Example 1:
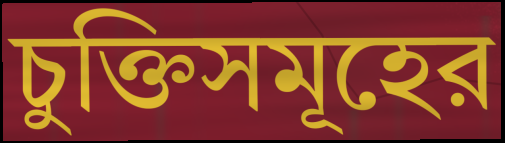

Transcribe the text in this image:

চুক্তিসমূহের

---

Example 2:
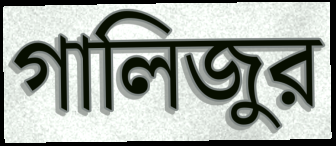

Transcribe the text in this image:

গালিজুর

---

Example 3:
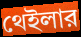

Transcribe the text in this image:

থেইলার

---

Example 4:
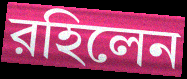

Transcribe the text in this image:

রহিলেন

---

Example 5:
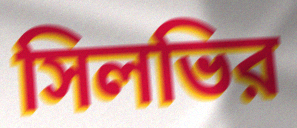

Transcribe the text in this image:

সিলভির